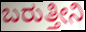
ಬರುತ್ತೀನಿ